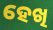
ହେଖି